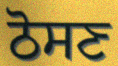
ਠੋਸਣ